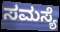
ಸಮಸ್ಯೆ